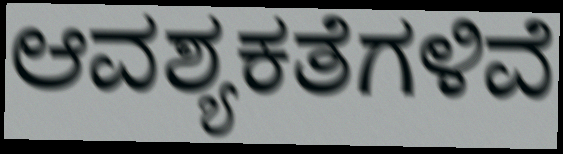
ಆವಶ್ಯಕತೆಗಳಿವೆ